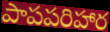
పాపపరిహార